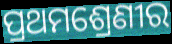
ପ୍ରଥମଶ୍ରେଣୀର